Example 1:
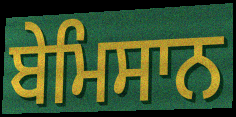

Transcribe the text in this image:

ਬੇਮਿਸਾਨ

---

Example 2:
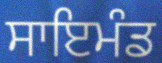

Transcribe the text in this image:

ਸਾਇਮੰਡ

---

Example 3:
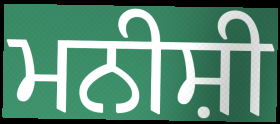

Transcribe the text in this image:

ਮਨੀਸ਼ੀ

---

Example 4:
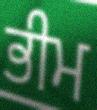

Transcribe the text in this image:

ਭੀਮ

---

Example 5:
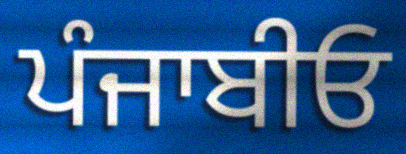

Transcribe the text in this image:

ਪੰਜਾਬੀਓ